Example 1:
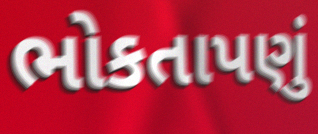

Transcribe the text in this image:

ભોકતાપણું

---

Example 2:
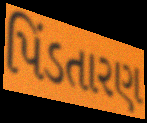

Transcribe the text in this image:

પિંડતારણ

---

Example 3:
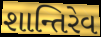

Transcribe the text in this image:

શાન્તિરેવ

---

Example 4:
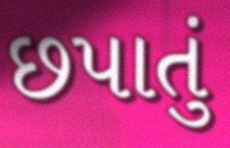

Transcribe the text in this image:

છપાતું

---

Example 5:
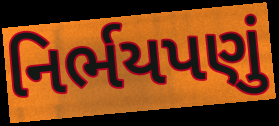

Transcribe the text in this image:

નિર્ભયપણું